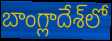
బాంగ్లాదేశ్‌లో